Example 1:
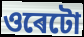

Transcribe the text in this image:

ওৰেটো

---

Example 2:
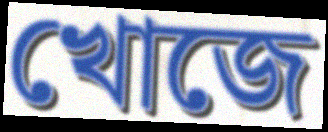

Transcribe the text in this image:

খোজে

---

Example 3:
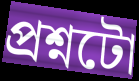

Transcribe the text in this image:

প্ৰশ্নটো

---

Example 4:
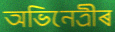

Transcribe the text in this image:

অভিনেত্ৰীৰ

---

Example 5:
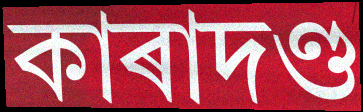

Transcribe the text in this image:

কাৰাদণ্ড